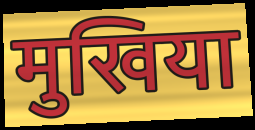
मुखिया